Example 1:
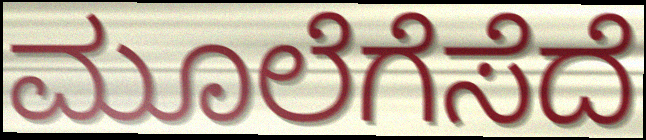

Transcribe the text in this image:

ಮೂಲೆಗೆಸೆದೆ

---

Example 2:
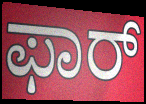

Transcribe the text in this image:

ಫಾರ್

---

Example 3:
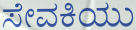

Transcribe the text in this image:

ಸೇವಕಿಯು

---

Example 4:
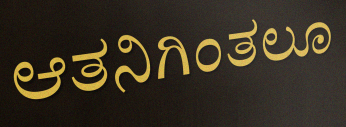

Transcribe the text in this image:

ಆತನಿಗಿಂತಲೂ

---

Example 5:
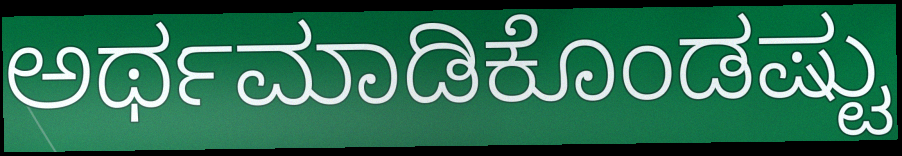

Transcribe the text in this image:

ಅರ್ಥಮಾಡಿಕೊಂಡಷ್ಟು